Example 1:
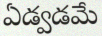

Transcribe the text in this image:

ఏడ్వడమే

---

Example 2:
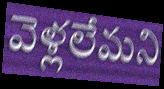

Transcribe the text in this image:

వెళ్లలేమని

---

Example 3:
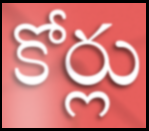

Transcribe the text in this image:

కోర్లు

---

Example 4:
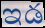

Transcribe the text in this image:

ఇడ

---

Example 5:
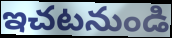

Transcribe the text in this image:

ఇచటనుండి